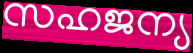
സഹജന്യ